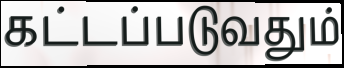
கட்டப்படுவதும்